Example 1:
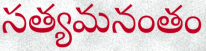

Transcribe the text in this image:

సత్యమనంతం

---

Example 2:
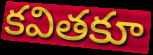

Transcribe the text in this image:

కవితకూ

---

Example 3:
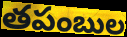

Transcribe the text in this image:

తపంబుల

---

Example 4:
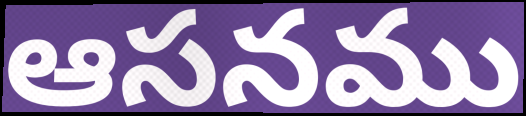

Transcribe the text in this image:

ఆసనము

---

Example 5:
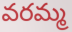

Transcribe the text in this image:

వరమ్మ